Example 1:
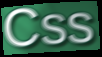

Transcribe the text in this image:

Css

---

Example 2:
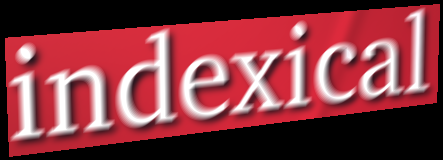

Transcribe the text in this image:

indexical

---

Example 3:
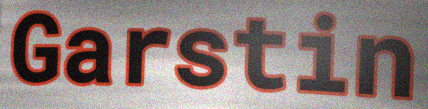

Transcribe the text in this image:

Garstin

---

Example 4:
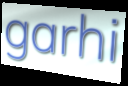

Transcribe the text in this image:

garhi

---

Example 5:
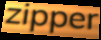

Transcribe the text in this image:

zipper